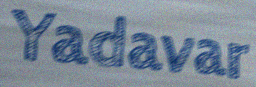
Yadavar